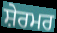
ਸ਼ੇਰਮਰ